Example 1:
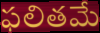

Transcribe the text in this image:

ఫలితమే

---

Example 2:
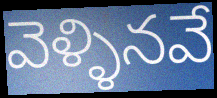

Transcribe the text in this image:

వెళ్ళినవే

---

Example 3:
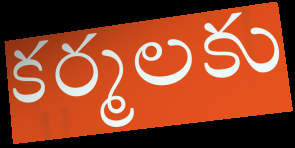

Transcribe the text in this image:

కర్మలకు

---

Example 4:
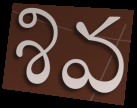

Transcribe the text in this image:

శివ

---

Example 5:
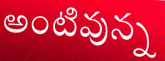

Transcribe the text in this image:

అంటివున్న